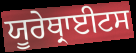
ਯੂਰੇਥ੍ਰਾਈਟਸ